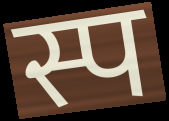
स्प